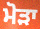
ਮੋੜਾ